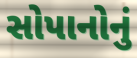
સોપાનોનું